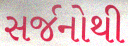
સર્જનોથી